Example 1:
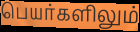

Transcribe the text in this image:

பெயர்களிலும்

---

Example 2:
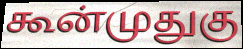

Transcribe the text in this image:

கூன்முதுகு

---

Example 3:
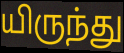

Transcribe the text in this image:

யிருந்து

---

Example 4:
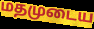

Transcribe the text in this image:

மதமுடைய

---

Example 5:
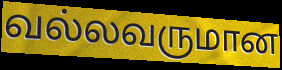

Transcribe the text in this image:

வல்லவருமான